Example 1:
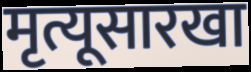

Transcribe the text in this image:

मृत्यूसारखा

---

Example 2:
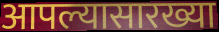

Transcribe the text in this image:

आपल्यासारख्या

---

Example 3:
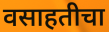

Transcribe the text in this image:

वसाहतीचा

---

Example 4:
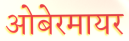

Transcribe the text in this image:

ओबेरमायर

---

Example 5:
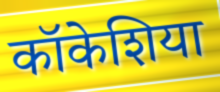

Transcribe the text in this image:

कॉकेशिया